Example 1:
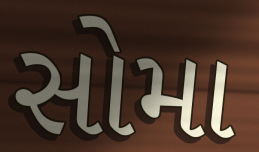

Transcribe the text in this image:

સોમા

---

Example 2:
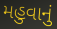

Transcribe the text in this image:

મહુવાનું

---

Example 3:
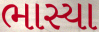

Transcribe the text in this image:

ભાસ્યા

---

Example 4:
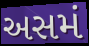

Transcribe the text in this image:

અસમં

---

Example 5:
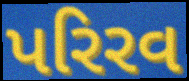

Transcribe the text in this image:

પરિરવ